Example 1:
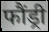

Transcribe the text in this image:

फौंड्री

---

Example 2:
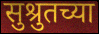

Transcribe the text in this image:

सुश्रुतच्या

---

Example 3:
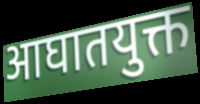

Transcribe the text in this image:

आघातयुक्त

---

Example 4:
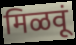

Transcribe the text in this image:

मिळवूं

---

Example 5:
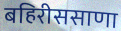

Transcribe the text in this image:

बहिरीससाणा